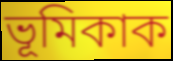
ভূমিকাক